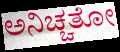
ಅನಿಚ್ಚತೋ